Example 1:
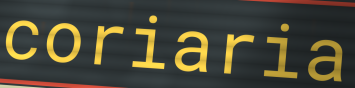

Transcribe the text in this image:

coriaria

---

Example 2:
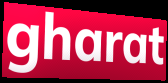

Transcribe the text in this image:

gharat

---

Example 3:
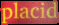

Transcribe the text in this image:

placid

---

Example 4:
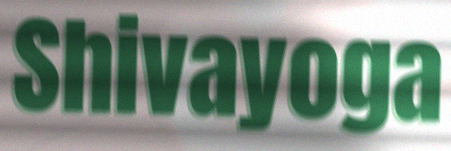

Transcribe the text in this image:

Shivayoga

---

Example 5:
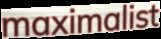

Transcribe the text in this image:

maximalist